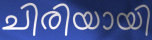
ചിരിയായി